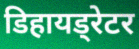
डिहायड्रेटर